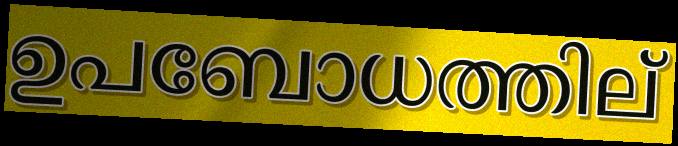
ഉപബോധത്തില്